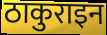
ठाकुराइन